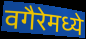
वगैरेमध्ये